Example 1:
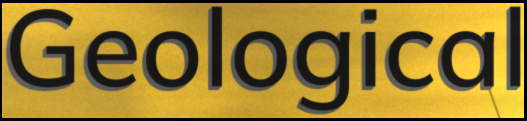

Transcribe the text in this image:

Geological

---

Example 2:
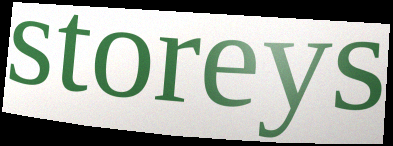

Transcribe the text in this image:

storeys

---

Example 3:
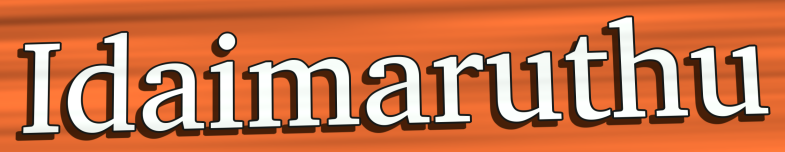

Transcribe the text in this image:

Idaimaruthu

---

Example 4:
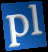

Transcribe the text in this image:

pl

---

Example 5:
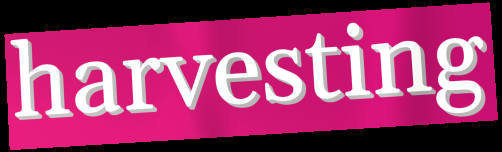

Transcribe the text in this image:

harvesting